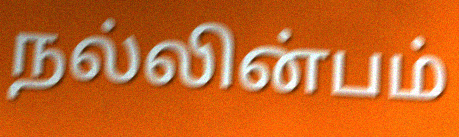
நல்லின்பம்